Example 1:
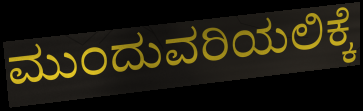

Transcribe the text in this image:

ಮುಂದುವರಿಯಲಿಕ್ಕೆ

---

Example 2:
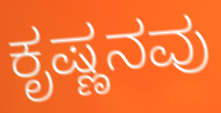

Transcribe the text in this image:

ಕೃಷ್ಣನವು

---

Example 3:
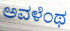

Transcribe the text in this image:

ಅವಳೆಂಥ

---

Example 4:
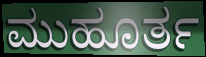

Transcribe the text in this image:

ಮುಹೂರ್ತ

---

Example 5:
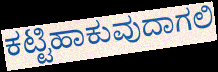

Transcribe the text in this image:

ಕಟ್ಟಿಹಾಕುವುದಾಗಲಿ